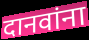
दानवांना